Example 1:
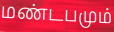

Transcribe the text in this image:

மண்டபமும்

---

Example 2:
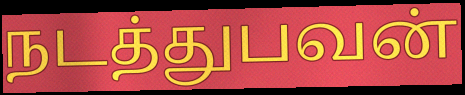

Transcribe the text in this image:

நடத்துபவன்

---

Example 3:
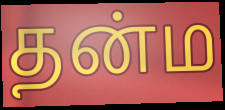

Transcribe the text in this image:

தன்ம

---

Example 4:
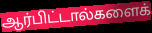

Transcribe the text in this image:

ஆர்பிட்டால்களைக்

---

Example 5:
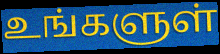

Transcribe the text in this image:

உங்களுள்